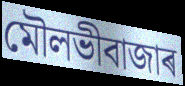
মৌলভীবাজাৰ